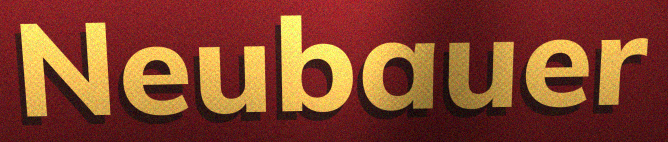
Neubauer